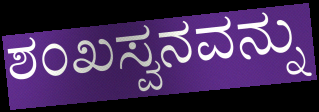
ಶಂಖಸ್ವನವನ್ನು